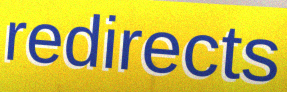
redirects